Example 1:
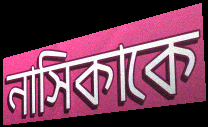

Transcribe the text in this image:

নাসিকাকে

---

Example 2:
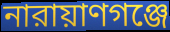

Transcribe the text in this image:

নারায়াণগঞ্জে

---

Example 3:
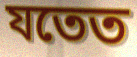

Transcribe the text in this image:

যতেত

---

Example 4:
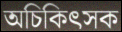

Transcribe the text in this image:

অচিকিৎসক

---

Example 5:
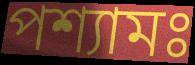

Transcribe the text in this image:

পশ্যামঃ